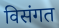
विसंगत